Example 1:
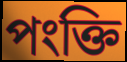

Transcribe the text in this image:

পংক্তি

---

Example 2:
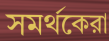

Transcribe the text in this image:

সমর্থকেরা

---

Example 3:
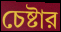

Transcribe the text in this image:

চেষ্টার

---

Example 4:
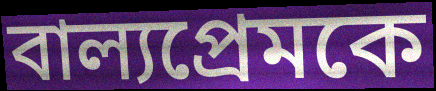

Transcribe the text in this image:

বাল্যপ্রেমকে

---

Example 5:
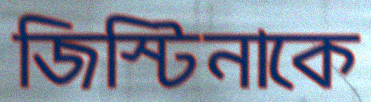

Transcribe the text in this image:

জিস্টিনাকে